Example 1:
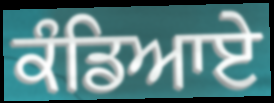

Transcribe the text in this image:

ਕੰਡਿਆਏ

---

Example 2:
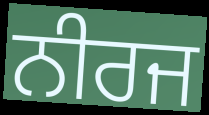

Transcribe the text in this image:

ਨੀਰਜ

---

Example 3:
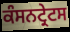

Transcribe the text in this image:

ਕੰਸਨਟ੍ਰੇਟਸ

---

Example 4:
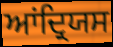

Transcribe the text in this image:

ਆਂਦ੍ਰਿਯਸ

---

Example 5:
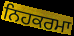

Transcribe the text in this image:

ਨਿਹਕਰਮਾ